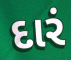
દારં